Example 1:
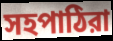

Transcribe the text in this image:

সহপাঠিরা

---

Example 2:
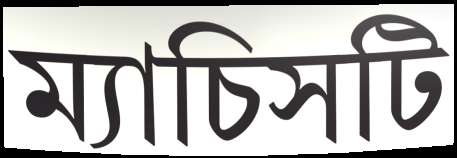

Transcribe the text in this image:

ম্যাচিসটি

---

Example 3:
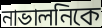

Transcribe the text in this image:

নাভালনিকে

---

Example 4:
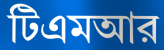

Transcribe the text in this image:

টিএমআর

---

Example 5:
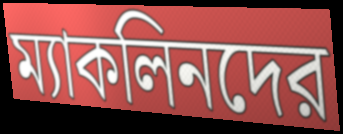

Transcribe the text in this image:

ম্যাকলিনদের